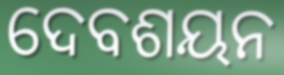
ଦେବଶୟନ